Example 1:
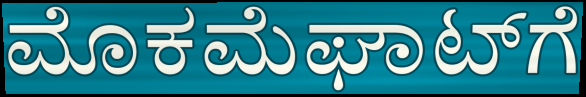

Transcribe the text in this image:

ಮೊಕಮೆಘಾಟ್‌ಗೆ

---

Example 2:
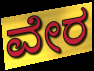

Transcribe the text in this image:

ವೇರ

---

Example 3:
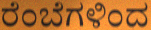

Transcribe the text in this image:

ರೆಂಬೆಗಳಿಂದ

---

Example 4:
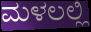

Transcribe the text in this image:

ಮಳಲಲ್ಲಿ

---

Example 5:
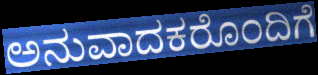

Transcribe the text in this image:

ಅನುವಾದಕರೊಂದಿಗೆ